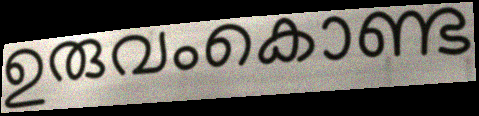
ഉരുവംകൊണ്ട